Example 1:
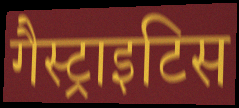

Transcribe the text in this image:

गैस्ट्राइटिस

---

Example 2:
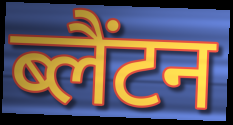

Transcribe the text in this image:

ब्लैंटन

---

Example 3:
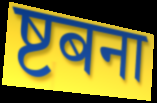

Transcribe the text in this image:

ष्टबना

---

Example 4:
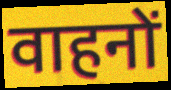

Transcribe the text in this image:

वाहनों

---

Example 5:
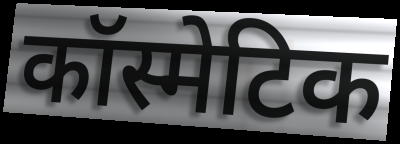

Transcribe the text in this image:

कॉस्मेटिक